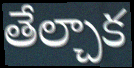
తేల్చాక